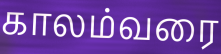
காலம்வரை